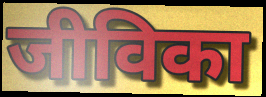
जीविका